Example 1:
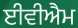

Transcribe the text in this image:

ਈਵੀਐਮ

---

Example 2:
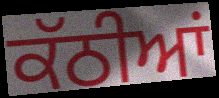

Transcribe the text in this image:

ਕੱਠੀਆਂ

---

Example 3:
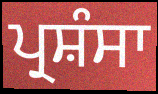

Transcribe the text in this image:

ਪ੍ਰਸ਼ੰਸਾ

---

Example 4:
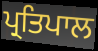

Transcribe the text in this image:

ਪ੍ਰਤਿਪਾਲ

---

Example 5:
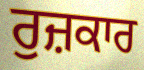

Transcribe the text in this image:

ਰੁਜ਼ਕਾਰ